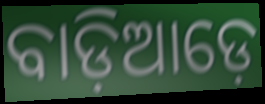
ବାଡ଼ିଆଡ଼େ